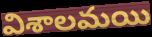
విశాలమయి